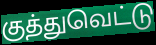
குத்துவெட்டு